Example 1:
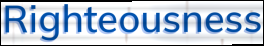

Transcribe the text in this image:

Righteousness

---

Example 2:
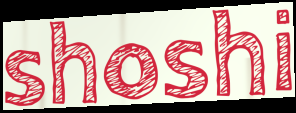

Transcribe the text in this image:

shoshi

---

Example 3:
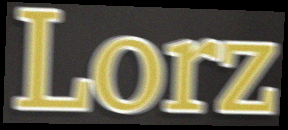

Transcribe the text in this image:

Lorz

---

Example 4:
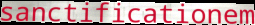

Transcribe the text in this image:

sanctificationem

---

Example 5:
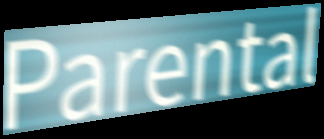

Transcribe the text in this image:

Parental